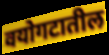
वयोगटातील